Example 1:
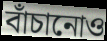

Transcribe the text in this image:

বাঁচানোও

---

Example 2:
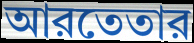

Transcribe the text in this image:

আরতেতার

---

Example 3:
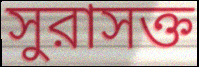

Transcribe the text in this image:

সুরাসক্ত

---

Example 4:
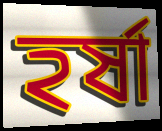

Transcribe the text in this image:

হর্ষা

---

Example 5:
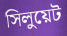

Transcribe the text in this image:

সিলুয়েট